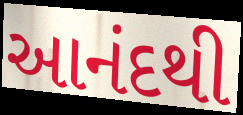
આનંદથી